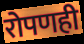
रोपणही